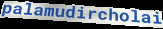
palamudircholai